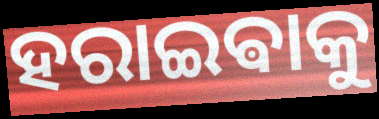
ହରାଇଵାକୁ